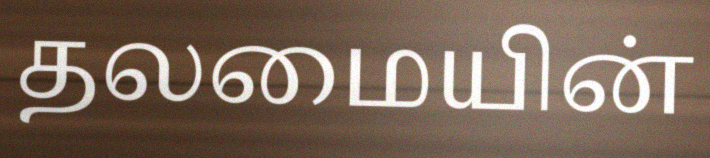
தலமையின்